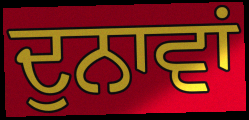
ਦੁਨਾਵਾਂ